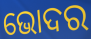
ଭୋଦର